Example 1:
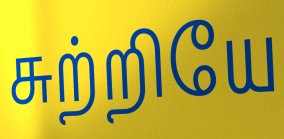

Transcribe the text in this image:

சுற்றியே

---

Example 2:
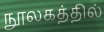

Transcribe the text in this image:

நூலகத்தில்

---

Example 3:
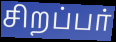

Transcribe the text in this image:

சிறப்பர்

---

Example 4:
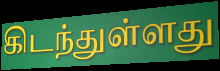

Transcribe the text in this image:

கிடந்துள்ளது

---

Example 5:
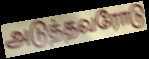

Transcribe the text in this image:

அடுத்தவரோடு